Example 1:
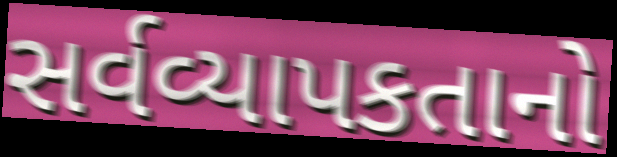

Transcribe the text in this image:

સર્વવ્યાપકતાનો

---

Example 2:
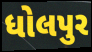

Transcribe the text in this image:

ધોલપુર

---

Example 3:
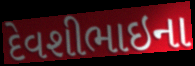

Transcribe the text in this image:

દેવશીભાઇના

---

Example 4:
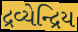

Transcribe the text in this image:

દ્રવ્યેન્દ્રિય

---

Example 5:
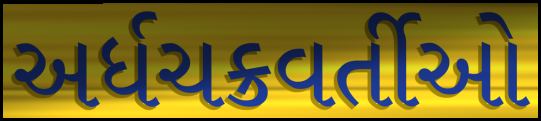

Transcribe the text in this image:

અર્ધચક્રવર્તીઓ